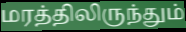
மரத்திலிருந்தும்